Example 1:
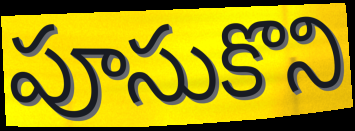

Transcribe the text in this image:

పూసుకొని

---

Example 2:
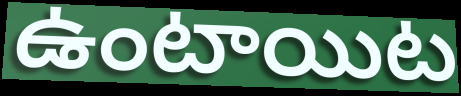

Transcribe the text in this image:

ఉంటాయిట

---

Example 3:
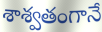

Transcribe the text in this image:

శాశ్వతంగానే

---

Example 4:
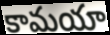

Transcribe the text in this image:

కామయా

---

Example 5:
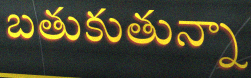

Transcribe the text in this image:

బతుకుతున్నా